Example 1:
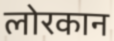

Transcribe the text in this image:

लोरकान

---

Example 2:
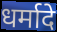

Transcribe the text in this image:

धर्मादे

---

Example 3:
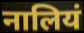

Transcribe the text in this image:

नालियं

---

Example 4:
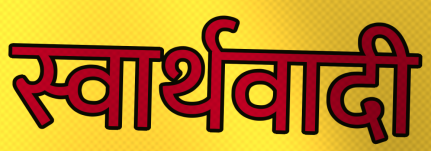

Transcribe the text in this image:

स्वार्थवादी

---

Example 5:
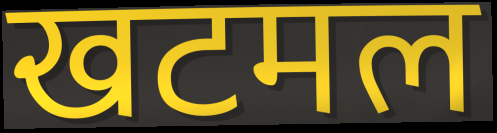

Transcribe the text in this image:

खटमल